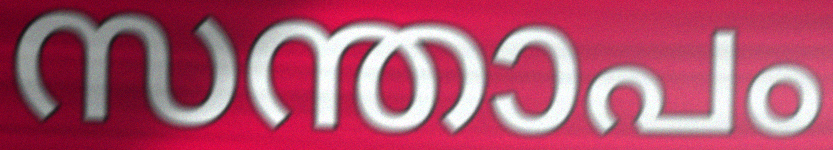
സന്താപം